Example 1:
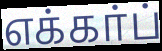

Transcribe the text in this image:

எக்கர்ப்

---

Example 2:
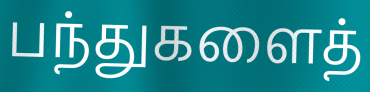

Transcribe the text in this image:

பந்துகளைத்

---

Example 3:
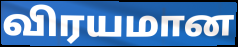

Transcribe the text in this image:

விரயமான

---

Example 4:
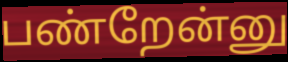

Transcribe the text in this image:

பண்றேன்னு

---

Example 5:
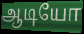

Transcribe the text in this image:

ஆடியோ